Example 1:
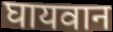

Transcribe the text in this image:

घायवान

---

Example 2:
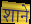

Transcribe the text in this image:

शाने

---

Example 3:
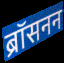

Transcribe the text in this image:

ब्रॉसनन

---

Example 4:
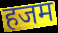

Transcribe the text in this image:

हजम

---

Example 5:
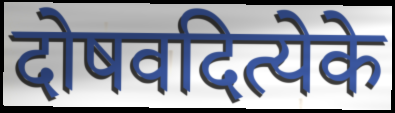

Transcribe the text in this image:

दोषवदित्येके